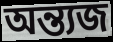
অন্ত্যজ